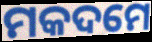
ମକଦମେ